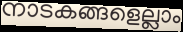
നാടകങ്ങളെല്ലാം